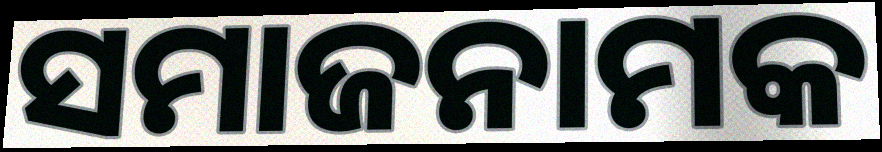
ସମାଜନାମକ